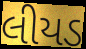
લીયડ